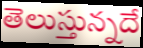
తెలుస్తున్నదే